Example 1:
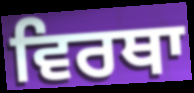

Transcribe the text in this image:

ਵਿਰਥਾ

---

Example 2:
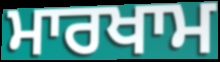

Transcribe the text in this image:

ਮਾਰਖਾਮ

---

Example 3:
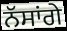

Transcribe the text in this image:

ਨੱਸਾਂਗੇ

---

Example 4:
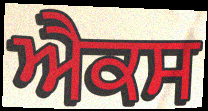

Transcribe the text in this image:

ਐਕਸ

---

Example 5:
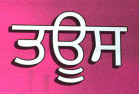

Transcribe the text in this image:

ਤਊਸ